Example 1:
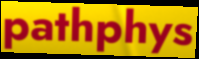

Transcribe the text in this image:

pathphys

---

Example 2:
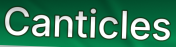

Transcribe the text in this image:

Canticles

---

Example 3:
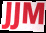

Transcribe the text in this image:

JJM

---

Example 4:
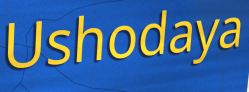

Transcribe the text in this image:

Ushodaya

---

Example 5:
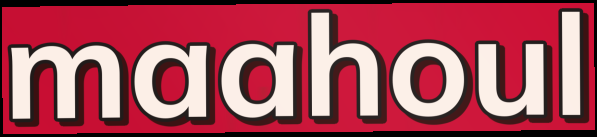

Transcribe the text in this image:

maahoul